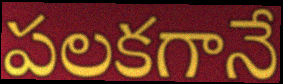
పలకగానే